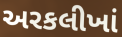
અરકલીખાં